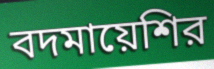
বদমায়েশির